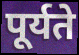
पूर्यते